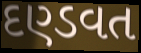
દણ્ડવત